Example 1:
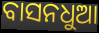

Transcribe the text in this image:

ବାସନଧୁଆ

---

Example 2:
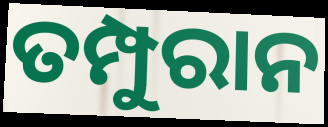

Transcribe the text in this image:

ତମ୍ପୁରାନ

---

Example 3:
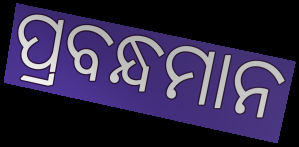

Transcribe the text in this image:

ପ୍ରବନ୍ଧମାନ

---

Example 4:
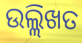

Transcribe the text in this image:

ଉଲ୍ଲିଖତ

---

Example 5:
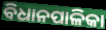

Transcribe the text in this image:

ବିଧାନପାଳିକା